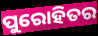
ପୁରୋହିତର